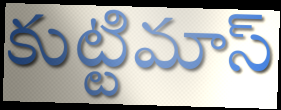
కుట్టిమాస్